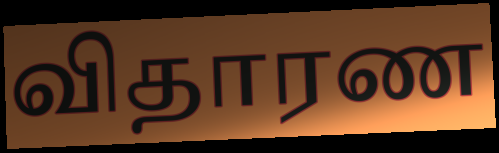
விதாரண